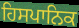
ਹਿਸਪਾਨਿਕ